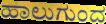
ಹಾಲುಗುಂದ